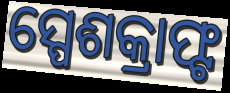
ସ୍ପେଶକ୍ରାଫ୍ଟ